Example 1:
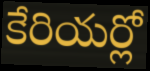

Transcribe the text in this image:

కేరియర్లో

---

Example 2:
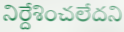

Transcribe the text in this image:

నిర్దేశించలేదని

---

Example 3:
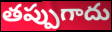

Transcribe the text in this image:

తప్పుగాదు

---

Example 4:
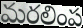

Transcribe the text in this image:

మరలింప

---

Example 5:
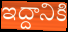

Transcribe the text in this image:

ఇద్దానికి